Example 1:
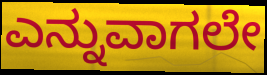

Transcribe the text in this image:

ಎನ್ನುವಾಗಲೇ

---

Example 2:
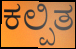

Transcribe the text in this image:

ಕಲ್ಪಿತ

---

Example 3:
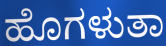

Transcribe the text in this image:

ಹೊಗಳುತಾ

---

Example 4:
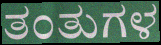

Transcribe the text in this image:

ತಂತುಗಳ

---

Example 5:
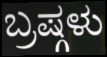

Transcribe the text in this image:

ಬ್ರಷ್ಗಳು